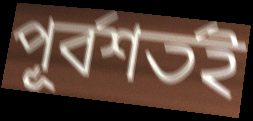
পূর্বশর্তই